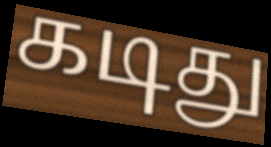
கடிது